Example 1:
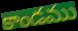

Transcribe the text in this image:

కాండము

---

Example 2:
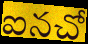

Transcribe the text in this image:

ఐనచో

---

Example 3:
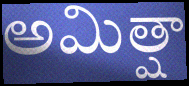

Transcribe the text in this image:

అమిత్షా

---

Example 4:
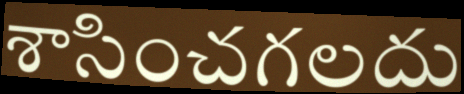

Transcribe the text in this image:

శాసించగలదు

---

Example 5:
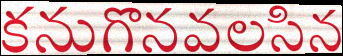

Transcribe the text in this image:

కనుగొనవలసిన